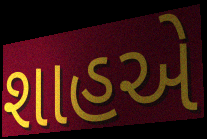
શાહએ